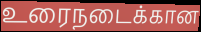
உரைநடைக்கான